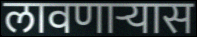
लावणाऱ्यास